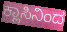
ಕ್ಲಾಸಿನಿಂದ